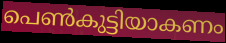
പെൺകുട്ടിയാകണം